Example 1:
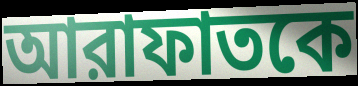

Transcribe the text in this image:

আরাফাতকে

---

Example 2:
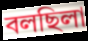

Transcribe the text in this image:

বলছিলা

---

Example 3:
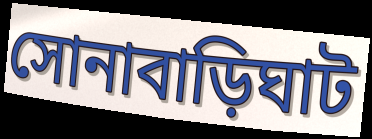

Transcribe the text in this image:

সোনাবাড়িঘাট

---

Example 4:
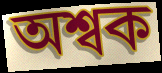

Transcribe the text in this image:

অশ্বক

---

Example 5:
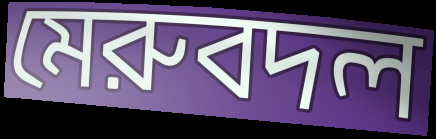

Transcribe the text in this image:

মেরুবদল